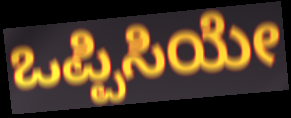
ಒಪ್ಪಿಸಿಯೇ